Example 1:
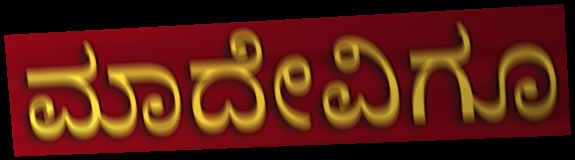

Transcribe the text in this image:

ಮಾದೇವಿಗೂ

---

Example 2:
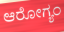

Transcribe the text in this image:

ಆರೋಗ್ಯಂ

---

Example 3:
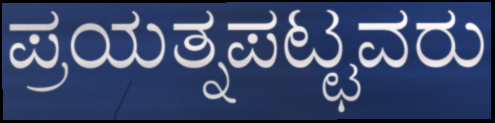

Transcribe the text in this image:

ಪ್ರಯತ್ನಪಟ್ಟವರು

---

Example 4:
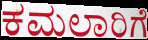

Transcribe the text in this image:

ಕಮಲಾರಿಗೆ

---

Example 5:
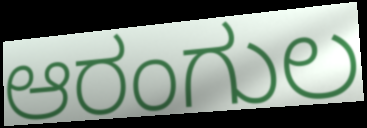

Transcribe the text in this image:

ಆರಂಗುಲ